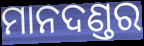
ମାନଦଣ୍ଡର